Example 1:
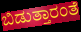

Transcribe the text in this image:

ಬಿಡುತ್ತಾರಂತೆ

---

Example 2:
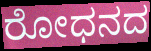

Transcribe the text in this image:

ರೋಧನದ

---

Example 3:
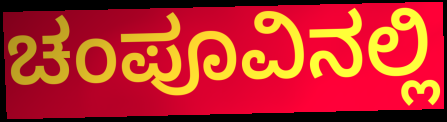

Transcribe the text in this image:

ಚಂಪೂವಿನಲ್ಲಿ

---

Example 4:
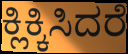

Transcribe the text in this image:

ಕ್ಲಿಕ್ಕಿಸಿದರೆ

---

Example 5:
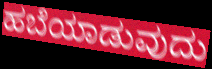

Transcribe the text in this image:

ಹಬೆಯಾಡುವುದು